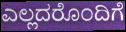
ಎಲ್ಲದರೊಂದಿಗೆ